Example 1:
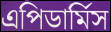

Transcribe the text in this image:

এপিডার্মিস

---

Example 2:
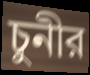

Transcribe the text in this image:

চুনীর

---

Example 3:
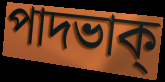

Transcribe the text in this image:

পাদভাক্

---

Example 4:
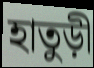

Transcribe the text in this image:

হাতুড়ী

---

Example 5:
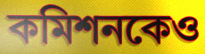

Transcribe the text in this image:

কমিশনকেও